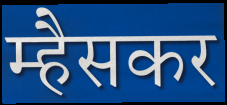
म्हैसकर